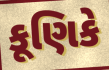
કૂણિકે